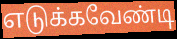
எடுக்கவேண்டி